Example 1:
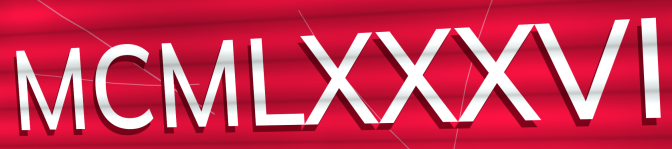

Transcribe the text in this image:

MCMLXXXVI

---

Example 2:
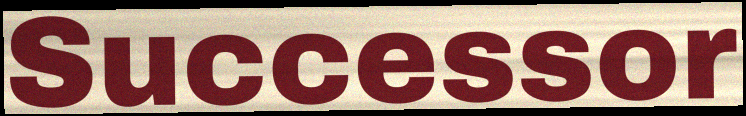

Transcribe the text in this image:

Successor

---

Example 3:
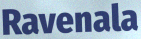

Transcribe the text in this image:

Ravenala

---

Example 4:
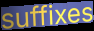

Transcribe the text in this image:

suffixes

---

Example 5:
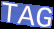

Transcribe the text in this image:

TAG